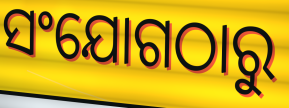
ସଂଯୋଗଠାରୁ